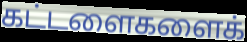
கட்டளைகளைக்